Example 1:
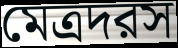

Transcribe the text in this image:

মেত্রদরস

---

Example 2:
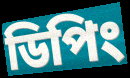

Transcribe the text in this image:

ডিপিং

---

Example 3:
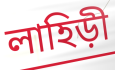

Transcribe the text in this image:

লাহিড়ী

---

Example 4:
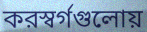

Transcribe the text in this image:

করস্বর্গগুলোয়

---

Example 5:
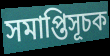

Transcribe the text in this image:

সমাপ্তিসূচক